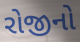
રોજીનો